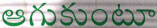
ఆగుకుంటూ